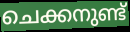
ചെക്കനുണ്ട്